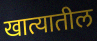
खात्यातील